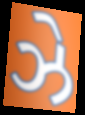
ઝે